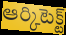
ఆర్కిటెక్ట్